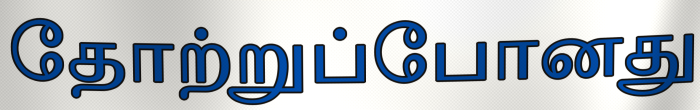
தோற்றுப்போனது